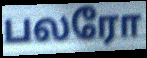
பலரோ